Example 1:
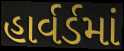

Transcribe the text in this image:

હાર્વર્ડમાં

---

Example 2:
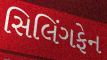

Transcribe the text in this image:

સિલિંગફેન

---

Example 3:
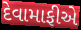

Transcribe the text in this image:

દેવામાફીએ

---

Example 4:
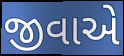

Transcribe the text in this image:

જીવાએ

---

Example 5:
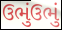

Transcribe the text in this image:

ઉભુંઉભું